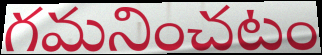
గమనించటం